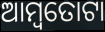
ଆମ୍ବତୋଟା